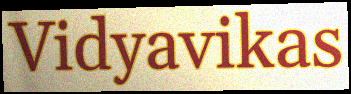
Vidyavikas